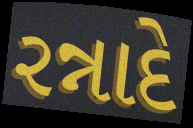
રન્નાદે